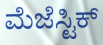
ಮೆಜೆಸ್ಟಿಕ್